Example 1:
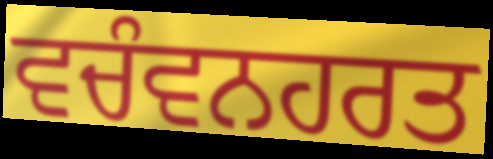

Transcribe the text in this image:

ਵਚੰਵਨਹਰਤ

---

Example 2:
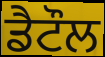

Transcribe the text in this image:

ਡੈਟੌਲ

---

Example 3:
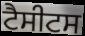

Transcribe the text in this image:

ਟੈਸੀਟਸ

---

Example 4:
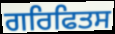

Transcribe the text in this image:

ਗਰਿਫਿਤਸ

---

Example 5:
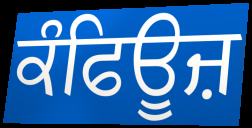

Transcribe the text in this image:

ਕੰਫਿਊਜ਼